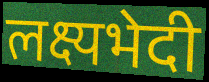
लक्ष्यभेदी